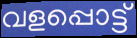
വളപ്പൊട്ട്